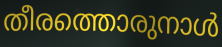
തീരത്തൊരുനാൾ